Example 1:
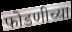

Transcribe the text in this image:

फोडणीच्या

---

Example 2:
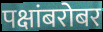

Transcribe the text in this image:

पक्षांबरोबर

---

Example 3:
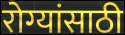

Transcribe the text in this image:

रोग्यांसाठी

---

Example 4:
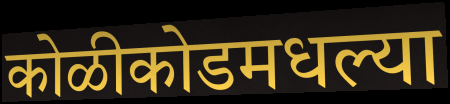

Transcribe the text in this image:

कोळीकोडमधल्या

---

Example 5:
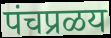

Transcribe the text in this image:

पंचप्रळय